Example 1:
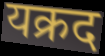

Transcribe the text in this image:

यक्रद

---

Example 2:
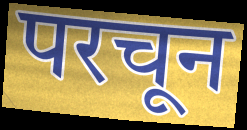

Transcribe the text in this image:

परचून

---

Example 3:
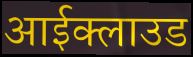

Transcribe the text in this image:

आईक्लाउड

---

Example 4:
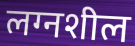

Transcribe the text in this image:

लग्नशील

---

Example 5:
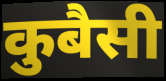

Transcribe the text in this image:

कुबैसी